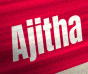
Ajitha